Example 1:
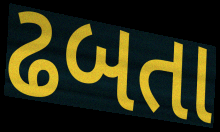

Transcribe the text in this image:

ઢબતા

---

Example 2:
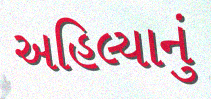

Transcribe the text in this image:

અહિલ્યાનું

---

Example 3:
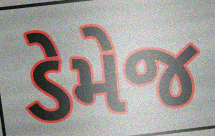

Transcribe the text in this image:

ડેમેજ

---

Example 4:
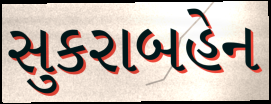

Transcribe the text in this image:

સુકરાબહેન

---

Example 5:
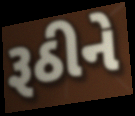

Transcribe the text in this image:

રૂઠીને